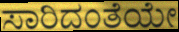
ಸಾರಿದಂತೆಯೇ